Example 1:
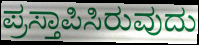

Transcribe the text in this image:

ಪ್ರಸ್ತಾಪಿಸಿರುವುದು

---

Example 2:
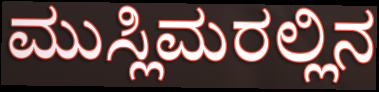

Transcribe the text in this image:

ಮುಸ್ಲಿಮರಲ್ಲಿನ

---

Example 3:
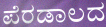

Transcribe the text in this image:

ಪೆರಡಾಲದ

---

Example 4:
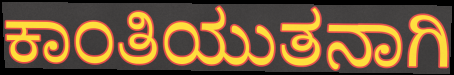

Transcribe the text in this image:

ಕಾಂತಿಯುತನಾಗಿ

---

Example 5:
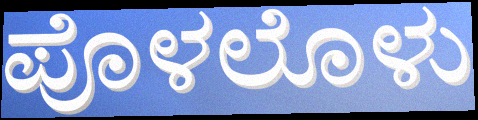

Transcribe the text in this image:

ಪೊಳಲೊಳು